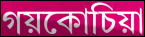
গয়কোচিয়া